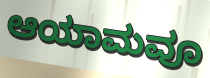
ಆಯಾಮವೂ